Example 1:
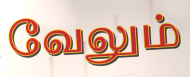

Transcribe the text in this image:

வேலும்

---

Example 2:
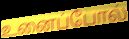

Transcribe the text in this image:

உனைப்போல்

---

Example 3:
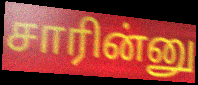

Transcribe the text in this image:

சாரின்னு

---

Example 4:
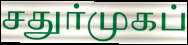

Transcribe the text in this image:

சதுர்முகப்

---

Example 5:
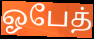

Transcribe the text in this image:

ஓபேத்